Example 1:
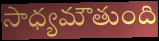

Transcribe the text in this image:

సాధ్యమౌతుంది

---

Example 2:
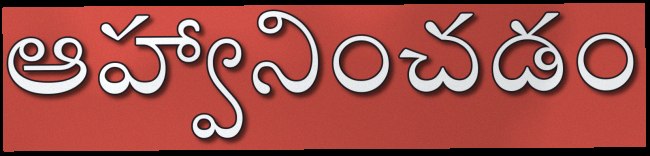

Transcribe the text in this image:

ఆహ్వానించడం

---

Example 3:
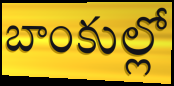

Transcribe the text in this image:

బాంకుల్లో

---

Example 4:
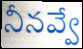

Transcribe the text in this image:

నీనవ్వే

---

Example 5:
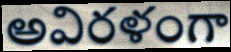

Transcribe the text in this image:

అవిరళంగా